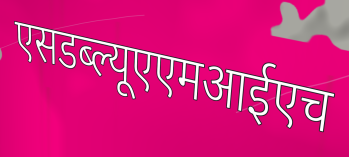
एसडब्ल्यूएएमआईएच